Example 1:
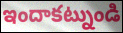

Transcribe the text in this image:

ఇందాకట్నుండి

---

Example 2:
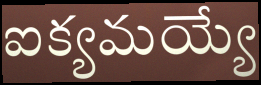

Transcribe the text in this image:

ఐక్యమయ్యే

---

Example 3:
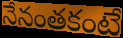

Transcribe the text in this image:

నేనంతకంటే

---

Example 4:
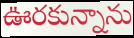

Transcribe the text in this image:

ఊరకున్నాను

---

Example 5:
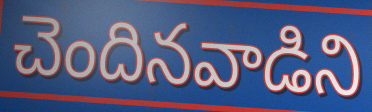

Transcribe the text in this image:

చెందినవాడిని